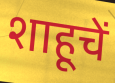
शाहूचें